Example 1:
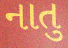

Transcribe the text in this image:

નાતુ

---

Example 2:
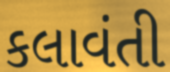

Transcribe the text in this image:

કલાવંતી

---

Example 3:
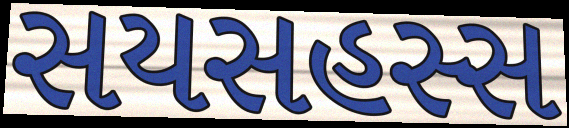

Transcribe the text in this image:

સયસહસ્સ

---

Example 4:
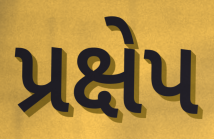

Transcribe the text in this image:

પ્રક્ષેપ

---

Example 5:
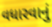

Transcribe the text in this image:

વધારવાનું